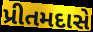
પ્રીતમદાસે